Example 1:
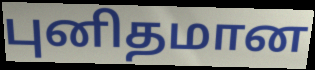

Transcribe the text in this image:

புனிதமான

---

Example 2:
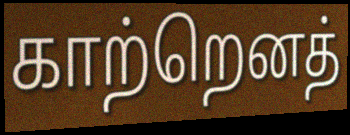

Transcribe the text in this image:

காற்றெனத்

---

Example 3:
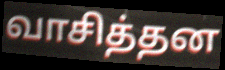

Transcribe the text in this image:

வாசித்தன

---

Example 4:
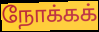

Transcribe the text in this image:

நோக்கக்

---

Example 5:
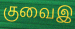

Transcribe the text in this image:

குவைஇ